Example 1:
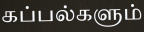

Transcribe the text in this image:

கப்பல்களும்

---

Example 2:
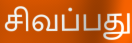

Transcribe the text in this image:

சிவப்பது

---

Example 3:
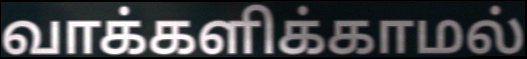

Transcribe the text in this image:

வாக்களிக்காமல்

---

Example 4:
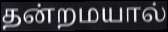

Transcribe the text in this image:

தன்றமயால்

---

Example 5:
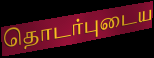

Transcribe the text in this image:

தொடர்புடைய